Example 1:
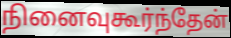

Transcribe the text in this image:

நினைவுகூர்ந்தேன்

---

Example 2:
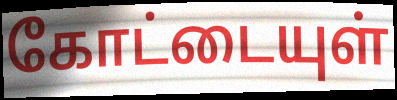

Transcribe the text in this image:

கோட்டையுள்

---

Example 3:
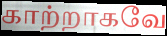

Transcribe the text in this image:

காற்றாகவே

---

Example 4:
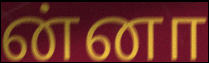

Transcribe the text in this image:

ன்னா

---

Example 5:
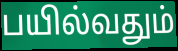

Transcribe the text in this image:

பயில்வதும்